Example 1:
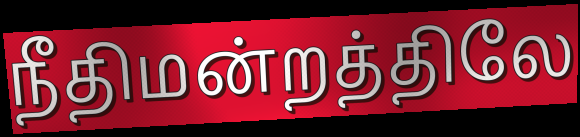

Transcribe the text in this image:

நீதிமன்றத்திலே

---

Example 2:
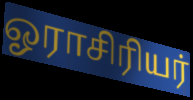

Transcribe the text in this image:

ஓராசிரியர்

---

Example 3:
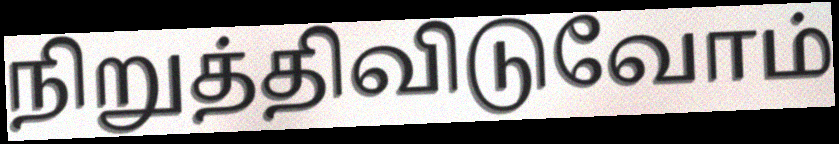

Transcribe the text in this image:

நிறுத்திவிடுவோம்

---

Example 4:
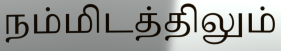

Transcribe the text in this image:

நம்மிடத்திலும்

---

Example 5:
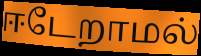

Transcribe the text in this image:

ஈடேறாமல்